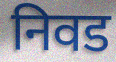
निवड